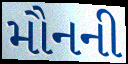
મૌનની